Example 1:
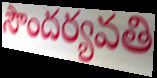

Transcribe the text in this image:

సౌందర్యవతి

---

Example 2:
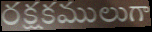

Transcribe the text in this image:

రక్షకములుగా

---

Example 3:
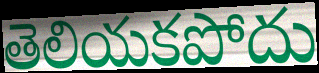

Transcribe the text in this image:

తెలియకపోదు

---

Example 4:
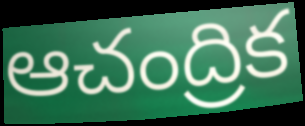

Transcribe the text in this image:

ఆచంద్రిక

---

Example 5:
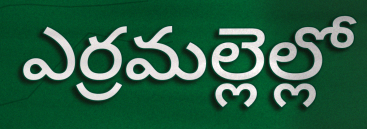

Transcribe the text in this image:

ఎర్రమల్లెల్లో